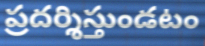
ప్రదర్శిస్తుండటం